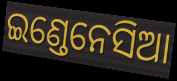
ଇଣ୍ଡେନେସିଆ